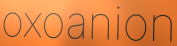
oxoanion